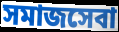
সমাজসেবা